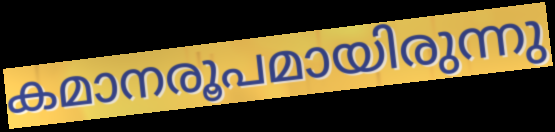
കമാനരൂപമായിരുന്നു